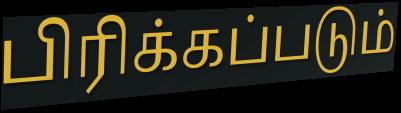
பிரிக்கப்படும்